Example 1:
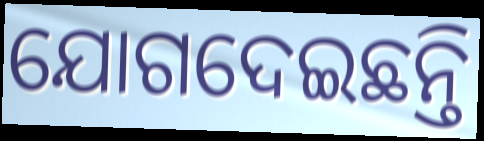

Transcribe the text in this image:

ଯୋଗଦେଇଛନ୍ତି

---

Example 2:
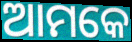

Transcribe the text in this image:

ଆମକେ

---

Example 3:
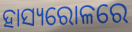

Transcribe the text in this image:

ହାସ୍ୟରୋଳରେ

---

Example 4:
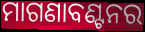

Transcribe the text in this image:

ମାଗଣାବଣ୍ଟନର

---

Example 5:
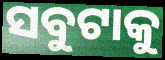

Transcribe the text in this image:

ସବୁଟାକୁ